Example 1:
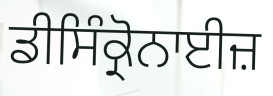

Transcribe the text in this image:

ਡੀਸਿੰਕ੍ਰੋਨਾਈਜ਼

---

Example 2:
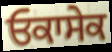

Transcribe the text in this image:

ਓਕਾਸੇਕ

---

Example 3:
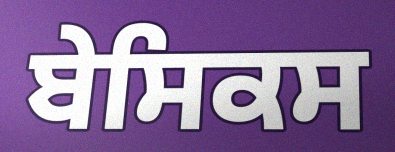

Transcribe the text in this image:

ਬੇਸਿਕਸ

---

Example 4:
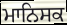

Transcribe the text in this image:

ਮਾਨਿਸਕ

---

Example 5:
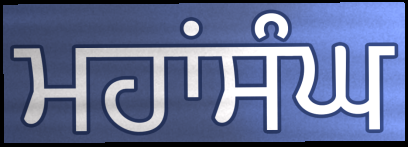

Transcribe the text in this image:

ਮਹਾਂਸੰਘ